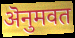
ऄनुमवत